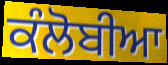
ਕੰਲੋਬੀਆ